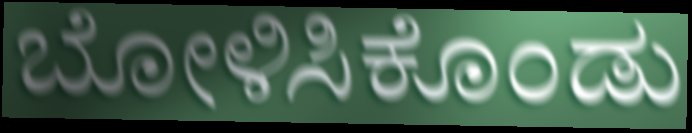
ಬೋಳಿಸಿಕೊಂಡು